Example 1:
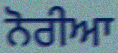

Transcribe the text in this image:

ਨੋਰੀਆ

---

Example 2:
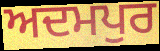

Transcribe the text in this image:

ਅਦਮਪੁਰ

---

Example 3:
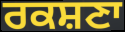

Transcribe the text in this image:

ਰਕਸ਼ਣਾ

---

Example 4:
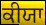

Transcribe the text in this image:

ਕੀਯਾ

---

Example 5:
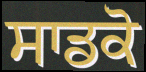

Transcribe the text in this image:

ਸਾਡਕੋ